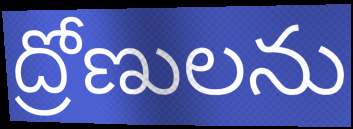
ద్రోణులను